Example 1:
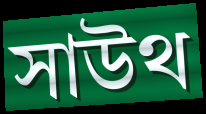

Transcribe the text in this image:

সাউথ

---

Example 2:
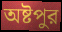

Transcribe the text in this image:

অষ্টপুর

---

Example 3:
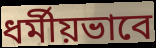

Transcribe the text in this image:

ধর্মীয়ভাবে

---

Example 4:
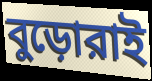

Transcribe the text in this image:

বুড়োরাই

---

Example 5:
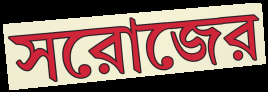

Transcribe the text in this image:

সরোজের